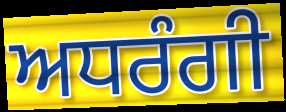
ਅਧਰੰਗੀ